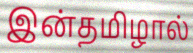
இன்தமிழால்